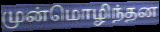
முன்மொழிந்தன